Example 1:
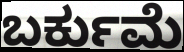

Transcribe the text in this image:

ಬರ್ಕುಮೆ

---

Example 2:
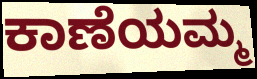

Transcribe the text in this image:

ಕಾಣೆಯಮ್ಮ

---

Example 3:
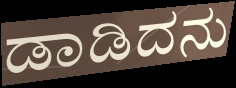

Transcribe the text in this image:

ಡಾಡಿದನು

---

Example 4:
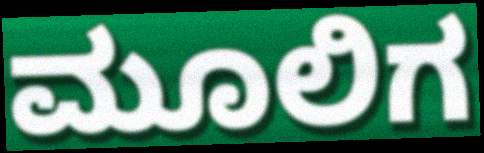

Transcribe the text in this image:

ಮೂಲಿಗ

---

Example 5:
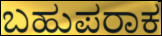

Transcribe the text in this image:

ಬಹುಪರಾಕ